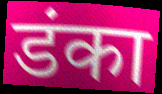
डंका